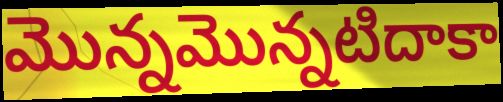
మొన్నమొన్నటిదాకా